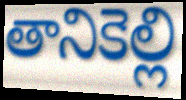
తానికెల్లి